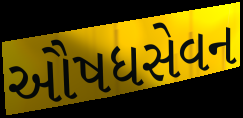
ઔષધસેવન